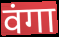
वंगा